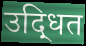
उद्धित